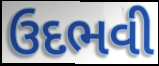
ઉદભવી